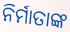
ନିର୍ମାତାଙ୍କ